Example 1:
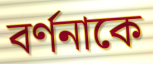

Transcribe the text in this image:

বর্ণনাকে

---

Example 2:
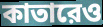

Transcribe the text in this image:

কাতারেও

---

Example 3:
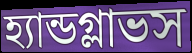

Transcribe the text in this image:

হ্যান্ডগ্লাভস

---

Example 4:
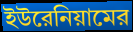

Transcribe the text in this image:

ইউরেনিয়ামের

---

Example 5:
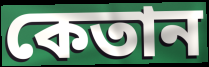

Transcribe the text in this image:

কেতান